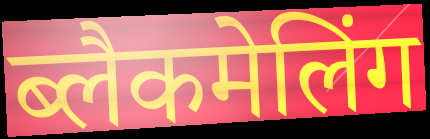
ब्लैकमेलिंग